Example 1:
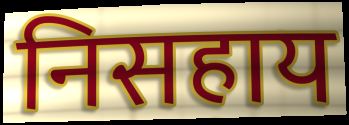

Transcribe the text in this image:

निसहाय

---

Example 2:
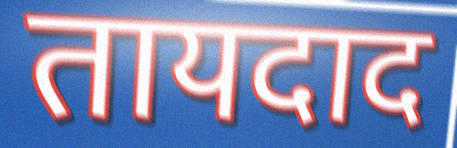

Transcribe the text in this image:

तायदाद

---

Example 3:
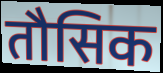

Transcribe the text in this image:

तौसिक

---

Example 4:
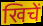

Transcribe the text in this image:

खिचें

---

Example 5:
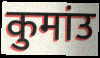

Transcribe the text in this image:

कुमांउ